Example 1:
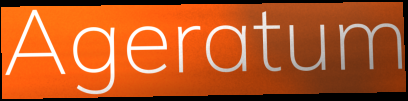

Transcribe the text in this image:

Ageratum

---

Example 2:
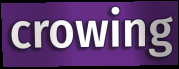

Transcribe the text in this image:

crowing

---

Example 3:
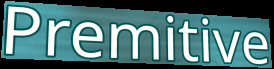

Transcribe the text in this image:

Premitive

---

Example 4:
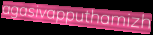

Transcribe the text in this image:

agasivapputhamizh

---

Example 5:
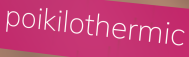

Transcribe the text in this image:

poikilothermic